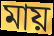
মায়